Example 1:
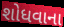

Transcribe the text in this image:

શોધવાના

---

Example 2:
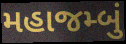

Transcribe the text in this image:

મહાજમ્બું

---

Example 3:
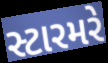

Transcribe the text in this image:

સ્ટારમરે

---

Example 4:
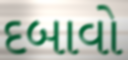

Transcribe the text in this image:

દબાવો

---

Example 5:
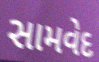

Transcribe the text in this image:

સામવેદ